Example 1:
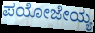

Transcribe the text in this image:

ಪಯೋಜೇಯ್ಯ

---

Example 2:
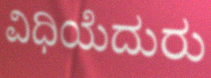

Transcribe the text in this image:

ವಿಧಿಯೆದುರು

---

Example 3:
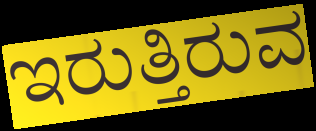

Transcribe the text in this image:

ಇರುತ್ತಿರುವ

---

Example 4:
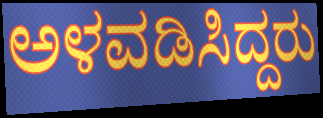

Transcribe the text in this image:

ಅಳವಡಿಸಿದ್ದರು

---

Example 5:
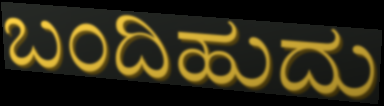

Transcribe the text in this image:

ಬಂದಿಹುದು